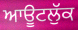
ਆਊਟਲੁੱਕ